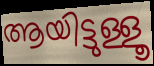
ആയിട്ടുള്ളൂ